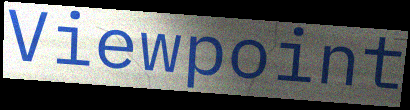
Viewpoint